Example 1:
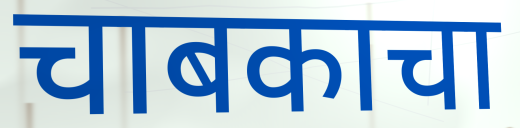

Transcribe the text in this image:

चाबकाचा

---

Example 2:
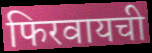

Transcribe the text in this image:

फिरवायची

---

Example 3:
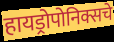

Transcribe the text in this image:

हायड्रोपोनिक्सचे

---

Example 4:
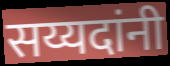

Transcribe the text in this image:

सय्यदांनी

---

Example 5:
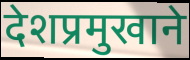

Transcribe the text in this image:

देशप्रमुखाने